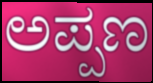
ಅಪ್ಪಣ